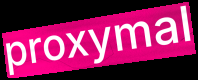
proxymal